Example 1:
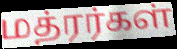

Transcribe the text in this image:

மத்ரர்கள்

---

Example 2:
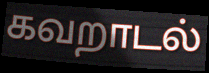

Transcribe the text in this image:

கவறாடல்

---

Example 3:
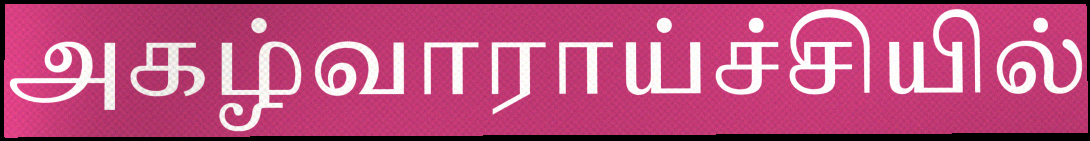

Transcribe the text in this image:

அகழ்வாராய்ச்சியில்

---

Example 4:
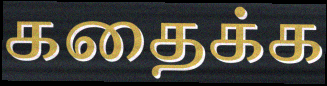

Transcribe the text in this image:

கதைக்க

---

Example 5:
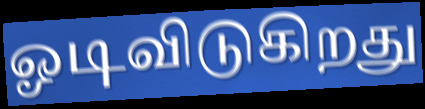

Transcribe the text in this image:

ஓடிவிடுகிறது